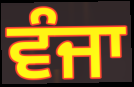
ਵੰਜਾ